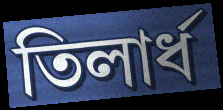
তিলার্ধ